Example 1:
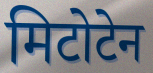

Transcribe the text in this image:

मिटोटेन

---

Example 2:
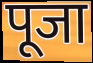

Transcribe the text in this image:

पूजा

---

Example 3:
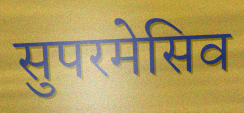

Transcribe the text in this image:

सुपरमेसिव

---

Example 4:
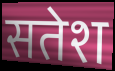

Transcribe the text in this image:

सतेश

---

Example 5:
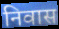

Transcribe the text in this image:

निवास